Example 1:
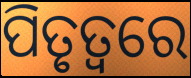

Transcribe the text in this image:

ପିତୃତ୍ୱରେ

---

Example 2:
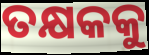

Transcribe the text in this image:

ତକ୍ଷକକୁ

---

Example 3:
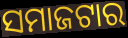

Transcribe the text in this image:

ସମାଜଟାର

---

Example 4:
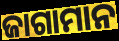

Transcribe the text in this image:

ଜାଗାମାନ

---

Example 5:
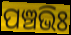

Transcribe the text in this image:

ପଞ୍ଚଭିଃ